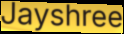
Jayshree